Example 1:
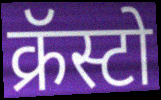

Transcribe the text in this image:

क्रॅस्टो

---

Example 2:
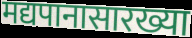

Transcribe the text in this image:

मद्यपानासारख्या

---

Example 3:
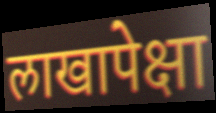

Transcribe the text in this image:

लाखापेक्षा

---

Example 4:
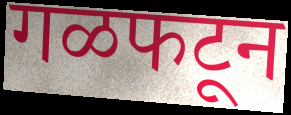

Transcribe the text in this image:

गळफटून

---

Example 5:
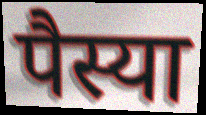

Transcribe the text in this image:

पैस्या